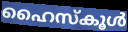
ഹൈസ്കൂൾ